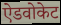
ऐडवोकेट